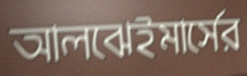
আলঝেইমার্সের